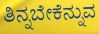
ತಿನ್ನಬೇಕೆನ್ನುವ